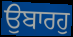
ਉਬਾਰਹੁ